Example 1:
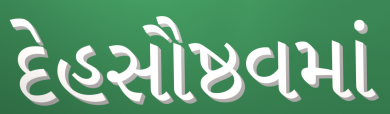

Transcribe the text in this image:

દેહસૌષ્ઠવમાં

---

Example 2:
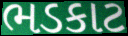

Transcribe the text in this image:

ભડકાટ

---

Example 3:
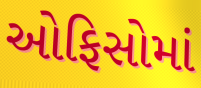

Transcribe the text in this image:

ઓફિસોમાં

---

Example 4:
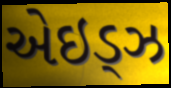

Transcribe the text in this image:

એઇડ્ઝ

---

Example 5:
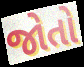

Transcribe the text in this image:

જોતો